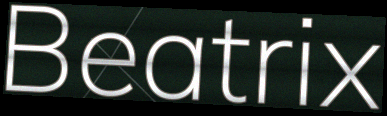
Beatrix